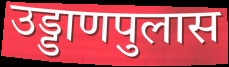
उड्डाणपुलास